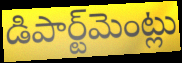
డిపార్ట్‌మెంట్లు